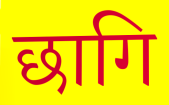
छागि